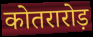
कोतरारोड़